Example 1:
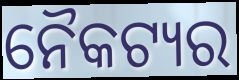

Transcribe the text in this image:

ନୈକଟ୍ୟର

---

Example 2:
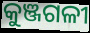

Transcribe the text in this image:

କୁଞ୍ଜଗଳୀ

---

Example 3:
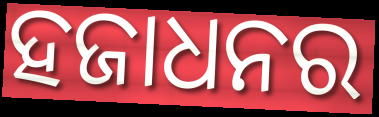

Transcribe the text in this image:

ହଜାଧନର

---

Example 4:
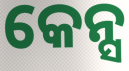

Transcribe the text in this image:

କେନ୍ସ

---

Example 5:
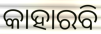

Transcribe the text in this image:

କାହାରବି